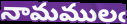
నామములఁ